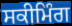
ਸਕੀਮਿੰਗ